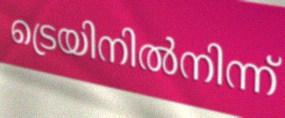
ട്രെയിനിൽനിന്ന്